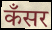
कँसर